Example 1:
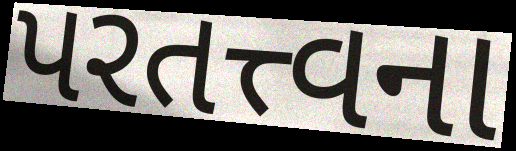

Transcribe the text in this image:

પરતત્ત્વના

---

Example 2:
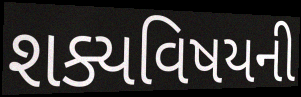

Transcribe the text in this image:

શક્યવિષયની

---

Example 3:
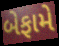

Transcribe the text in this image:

બેફામે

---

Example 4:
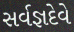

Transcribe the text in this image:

સર્વજ્ઞદેવે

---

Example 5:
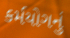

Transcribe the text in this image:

કર્મયોગનું